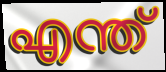
എന്ത്